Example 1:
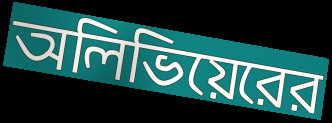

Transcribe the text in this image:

অলিভিয়েরের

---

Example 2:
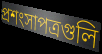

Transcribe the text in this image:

প্রশংসাপত্রগুলি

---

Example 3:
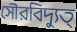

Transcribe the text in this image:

সৌরবিদ্যুত্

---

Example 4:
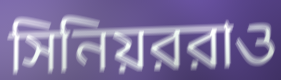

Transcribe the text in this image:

সিনিয়ররাও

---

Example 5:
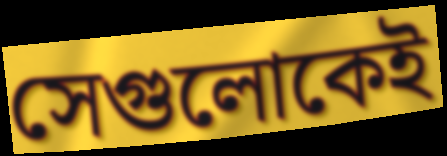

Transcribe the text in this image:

সেগুলোকেই